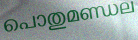
പൊതുമണ്ഡല